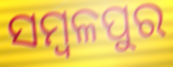
ସମ୍ବଳପୁର